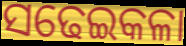
ସଢେଇକଳା